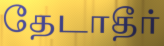
தேடாதீர்